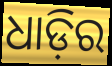
ଧାଡ଼ିର